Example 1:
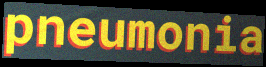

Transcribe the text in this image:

pneumonia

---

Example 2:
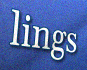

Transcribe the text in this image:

lings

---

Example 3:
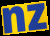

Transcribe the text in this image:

nz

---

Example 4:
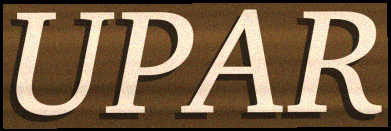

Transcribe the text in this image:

UPAR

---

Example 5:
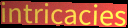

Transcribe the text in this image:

intricacies